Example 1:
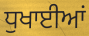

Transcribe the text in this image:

ਧੁਖਾਈਆਂ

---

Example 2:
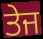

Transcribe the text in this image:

ਤੇਜ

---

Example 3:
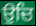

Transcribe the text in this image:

ਉਚਿ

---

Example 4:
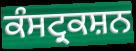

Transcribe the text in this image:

ਕੰਸਟ੍ਰਕਸ਼ਨ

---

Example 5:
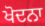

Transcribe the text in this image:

ਖੋਦਨਾ